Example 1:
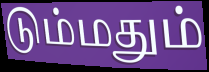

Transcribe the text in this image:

டும்மதும்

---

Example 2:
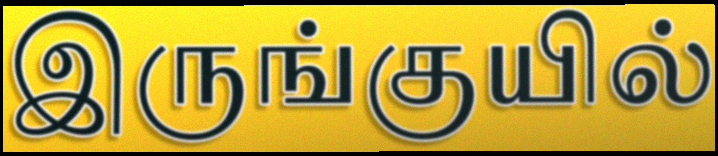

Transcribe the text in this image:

இருங்குயில்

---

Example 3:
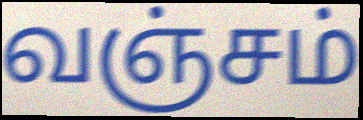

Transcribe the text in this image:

வஞ்சம்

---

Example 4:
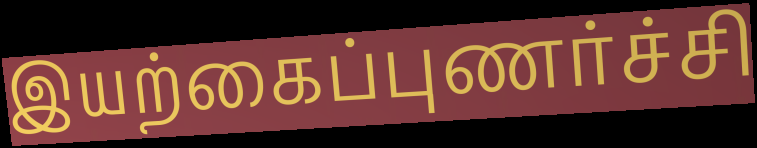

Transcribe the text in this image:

இயற்கைப்புணர்ச்சி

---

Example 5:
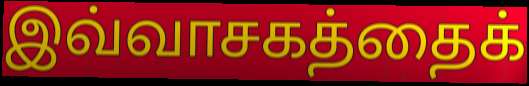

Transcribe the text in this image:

இவ்வாசகத்தைக்